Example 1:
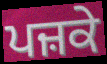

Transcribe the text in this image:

ਪਜ਼ਕੇ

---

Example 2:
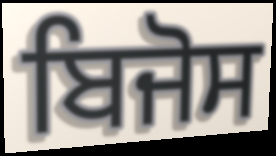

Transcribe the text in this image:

ਬਿਜੋਸ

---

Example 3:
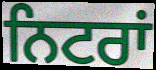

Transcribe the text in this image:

ਨਿਟਰਾਂ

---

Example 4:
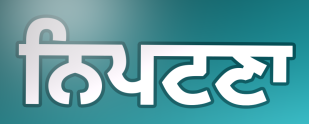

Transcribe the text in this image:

ਨਿਪਟਣਾ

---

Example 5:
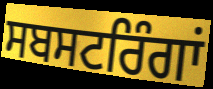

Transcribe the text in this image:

ਸਬਸਟਰਿੰਗਾਂ